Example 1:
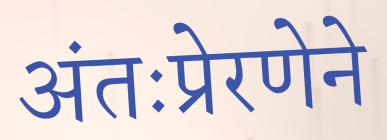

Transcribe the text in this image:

अंतःप्रेरणेने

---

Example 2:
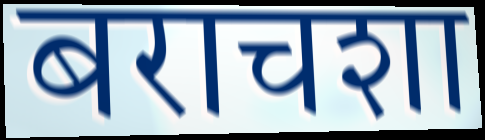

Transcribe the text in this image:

बराचशा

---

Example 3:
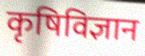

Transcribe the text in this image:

कृषिविज्ञान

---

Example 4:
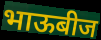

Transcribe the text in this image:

भाऊबीज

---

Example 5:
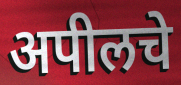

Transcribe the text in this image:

अपीलचे